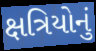
ક્ષત્રિયોનું